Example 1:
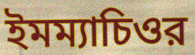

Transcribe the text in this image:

ইমম্যাচিওর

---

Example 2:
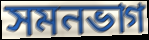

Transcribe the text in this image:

সমনভাগ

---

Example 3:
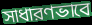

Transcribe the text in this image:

সাধারণভাবে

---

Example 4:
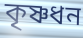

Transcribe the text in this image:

কৃষ্ণধন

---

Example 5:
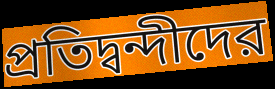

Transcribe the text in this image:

প্রতিদ্বন্দীদের